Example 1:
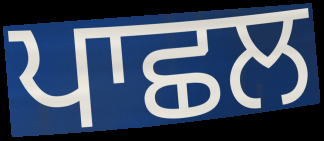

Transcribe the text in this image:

ਪਾਛਲ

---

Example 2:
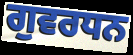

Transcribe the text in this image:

ਗੁਵਰਧਨ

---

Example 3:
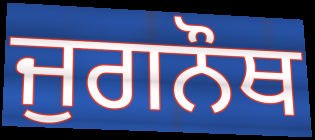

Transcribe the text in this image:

ਜੁਗਨੌਥ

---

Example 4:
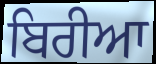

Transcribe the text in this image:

ਬਿਰੀਆ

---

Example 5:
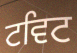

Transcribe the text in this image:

ਟਵਿਟ